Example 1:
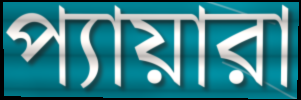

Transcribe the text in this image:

প্যায়ারা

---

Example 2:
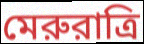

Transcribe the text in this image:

মেরুরাত্রি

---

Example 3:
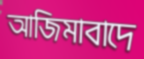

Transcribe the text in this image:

আজিমাবাদে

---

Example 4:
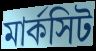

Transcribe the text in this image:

মার্কসিট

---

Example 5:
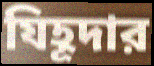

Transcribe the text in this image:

যিহূদার